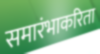
समारंभाकरिता